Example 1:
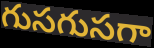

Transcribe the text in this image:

గుసగుసగా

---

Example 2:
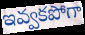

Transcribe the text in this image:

ఇవ్వకపోగా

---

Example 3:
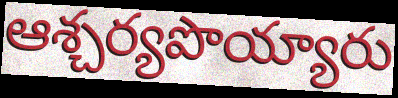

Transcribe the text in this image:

ఆశ్చర్యపొయ్యారు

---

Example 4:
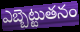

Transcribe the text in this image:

ఎబ్బెట్టుతనం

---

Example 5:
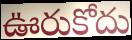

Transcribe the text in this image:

ఊరుకోదు